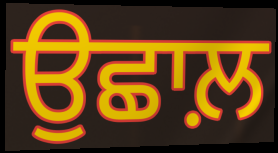
ਉਛਾਲ਼